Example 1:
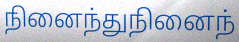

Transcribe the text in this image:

நினைந்துநினைந்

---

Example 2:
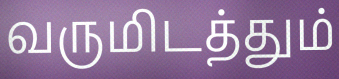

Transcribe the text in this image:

வருமிடத்தும்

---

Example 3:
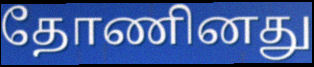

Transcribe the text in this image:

தோணினது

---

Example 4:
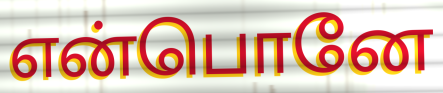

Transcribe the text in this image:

என்பொனே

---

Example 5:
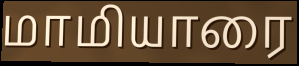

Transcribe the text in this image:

மாமியாரை